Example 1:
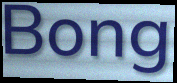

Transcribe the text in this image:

Bong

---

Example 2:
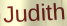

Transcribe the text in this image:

Judith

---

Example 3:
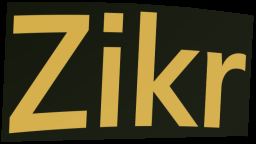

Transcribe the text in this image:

Zikr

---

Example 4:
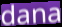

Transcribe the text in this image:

dana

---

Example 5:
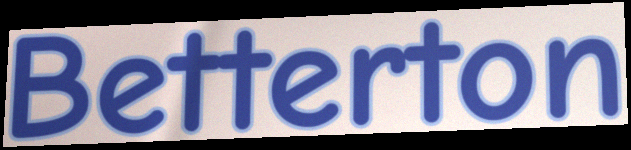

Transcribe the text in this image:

Betterton